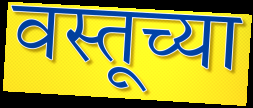
वस्तूच्या